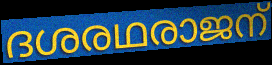
ദശരഥരാജന്